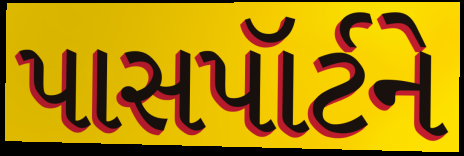
પાસપૉર્ટને